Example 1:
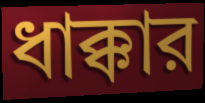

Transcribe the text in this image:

ধাক্কার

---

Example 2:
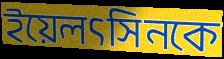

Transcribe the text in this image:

ইয়েলৎসিনকে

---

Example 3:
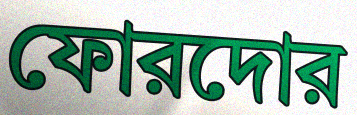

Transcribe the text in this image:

ফোরদোর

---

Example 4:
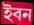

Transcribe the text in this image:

ইবন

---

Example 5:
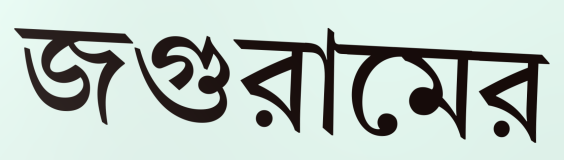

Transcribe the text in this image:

জগুরামের